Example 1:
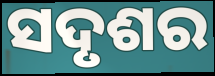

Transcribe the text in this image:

ସଦୃଶର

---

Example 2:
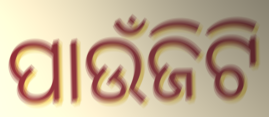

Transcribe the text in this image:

ପାଉଁଜିଟି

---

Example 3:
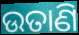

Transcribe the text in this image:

ଉତାଣି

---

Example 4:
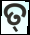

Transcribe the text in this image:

ତ୍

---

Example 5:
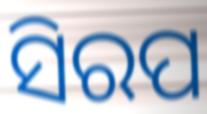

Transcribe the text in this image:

ସିରପ